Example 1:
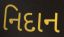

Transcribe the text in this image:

નિદાન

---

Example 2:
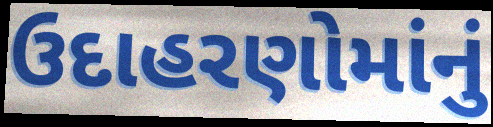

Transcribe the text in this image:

ઉદાહરણોમાંનું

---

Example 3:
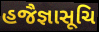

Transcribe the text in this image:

હજૈજ્ઞાસૂચિ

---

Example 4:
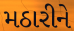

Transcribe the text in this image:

મઠારીને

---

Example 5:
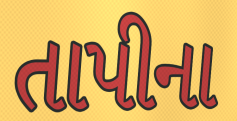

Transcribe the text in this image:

તાપીના